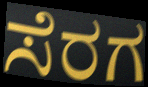
ಸೆರಗ